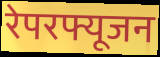
रेपरफ्यूजन